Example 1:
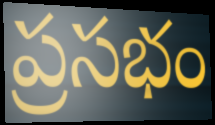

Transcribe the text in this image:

ప్రసభం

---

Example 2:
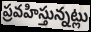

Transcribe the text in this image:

ప్రవహిస్తున్నట్లు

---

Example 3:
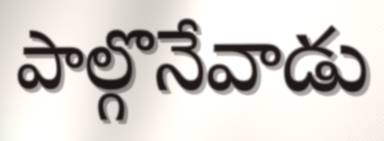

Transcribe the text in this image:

పాల్గొనేవాడు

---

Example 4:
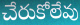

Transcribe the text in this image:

చేరుకోలేవు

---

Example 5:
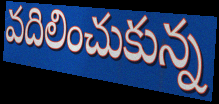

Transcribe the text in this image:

వదిలించుకున్న